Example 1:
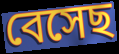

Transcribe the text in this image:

বেসেছ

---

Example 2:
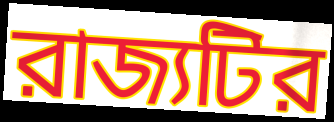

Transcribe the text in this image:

রাজ্যটির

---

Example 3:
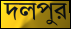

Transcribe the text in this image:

দলপুর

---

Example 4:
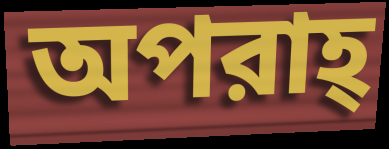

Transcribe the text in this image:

অপরাহ্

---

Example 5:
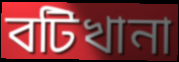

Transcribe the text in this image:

বটিখানা